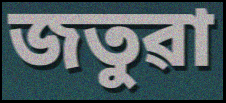
জতুৱা